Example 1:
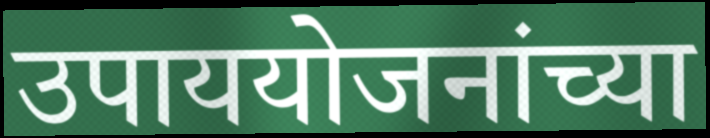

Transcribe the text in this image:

उपाययोजनांच्या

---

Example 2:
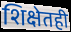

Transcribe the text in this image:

शिक्षेतही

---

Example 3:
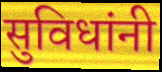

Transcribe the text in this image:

सुविधांनी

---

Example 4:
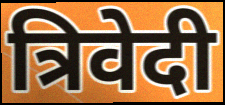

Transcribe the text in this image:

त्रिवेदी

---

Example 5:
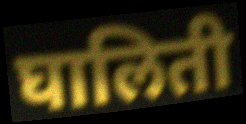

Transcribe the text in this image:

घालिती